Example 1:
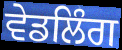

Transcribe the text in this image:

ਵੇਡਲਿੰਗ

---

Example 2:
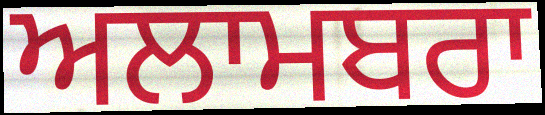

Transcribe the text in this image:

ਅਲਾਮਬਰਾ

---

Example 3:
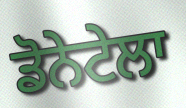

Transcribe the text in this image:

ਡੋਨੇਟੇਲਾ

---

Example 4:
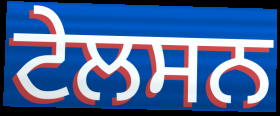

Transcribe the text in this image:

ਟੇਲਸਨ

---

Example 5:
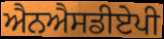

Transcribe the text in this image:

ਐਨਐਸਡੀਏਪੀ